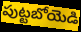
పుట్టబోయెడి